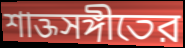
শাক্তসঙ্গীতের